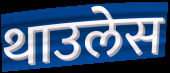
थाउलेस